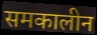
समकालीन